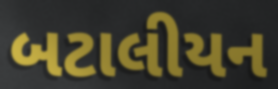
બટાલીયન